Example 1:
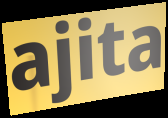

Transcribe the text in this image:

ajita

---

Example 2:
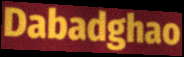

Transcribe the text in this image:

Dabadghao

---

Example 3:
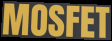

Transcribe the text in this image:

MOSFET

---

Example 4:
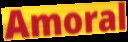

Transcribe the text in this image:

Amoral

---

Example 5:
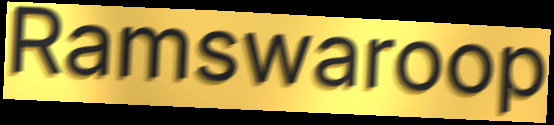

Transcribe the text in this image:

Ramswaroop